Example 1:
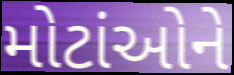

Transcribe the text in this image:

મોટાંઓને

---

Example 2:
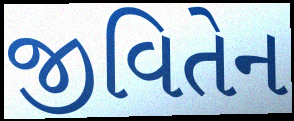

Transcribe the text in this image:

જીવિતેન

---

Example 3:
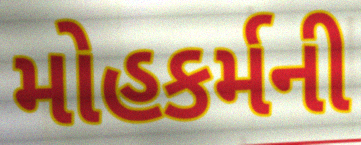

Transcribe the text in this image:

મોહકર્મની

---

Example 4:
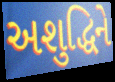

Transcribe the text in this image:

અશુદ્ધિને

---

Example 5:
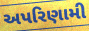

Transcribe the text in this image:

અપરિણામી